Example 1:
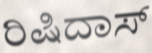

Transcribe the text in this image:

ರಿಷಿದಾಸ್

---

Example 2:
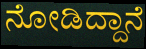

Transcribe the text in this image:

ನೋಡಿದ್ದಾನೆ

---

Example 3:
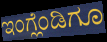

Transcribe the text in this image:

ಇಂಗ್ಲೆಂಡಿಗೂ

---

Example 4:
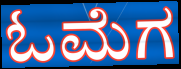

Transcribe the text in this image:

ಓಮೆಗ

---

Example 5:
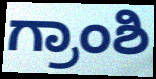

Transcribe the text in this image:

ಗ್ರಾಂಶಿ